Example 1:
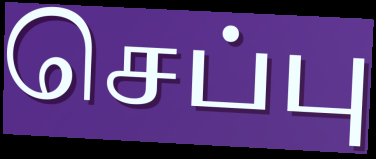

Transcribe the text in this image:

செப்பு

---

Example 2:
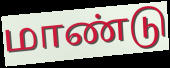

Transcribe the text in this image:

மாண்டு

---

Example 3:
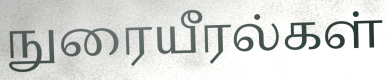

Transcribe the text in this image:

நுரையீரல்கள்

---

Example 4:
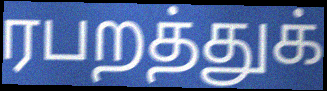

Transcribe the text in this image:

ரபறத்துக்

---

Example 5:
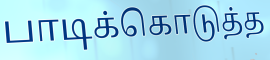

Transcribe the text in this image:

பாடிக்கொடுத்த